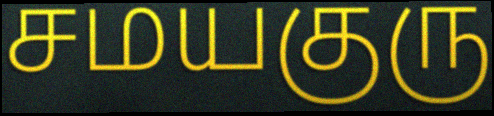
சமயகுரு